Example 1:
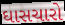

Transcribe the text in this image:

ઘાસચારો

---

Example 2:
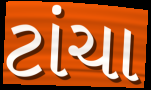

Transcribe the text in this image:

ટાંચા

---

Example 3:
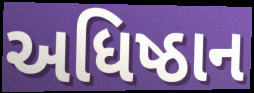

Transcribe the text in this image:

અધિષ્ઠાન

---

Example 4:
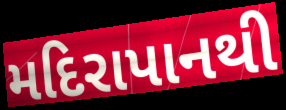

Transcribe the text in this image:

મદિરાપાનથી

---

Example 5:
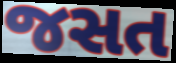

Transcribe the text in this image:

જસત